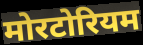
मोरटोरियम